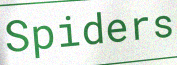
Spiders